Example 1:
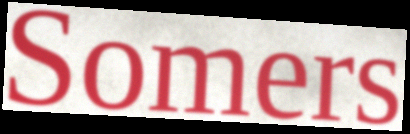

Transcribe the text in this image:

Somers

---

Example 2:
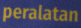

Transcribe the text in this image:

peralatan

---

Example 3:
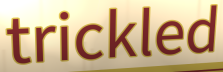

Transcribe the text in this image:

trickled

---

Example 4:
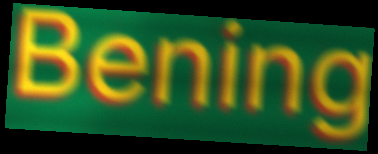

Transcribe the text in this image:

Bening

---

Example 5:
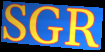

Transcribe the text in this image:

SGR